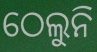
ଠେଲୁନି